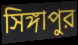
সিঙ্গাপুর